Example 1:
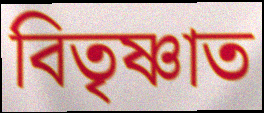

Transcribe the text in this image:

বিতৃষ্ণাত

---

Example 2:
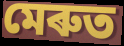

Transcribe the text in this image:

মেৰুত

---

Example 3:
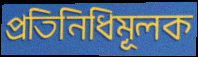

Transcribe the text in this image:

প্ৰতিনিধিমূলক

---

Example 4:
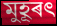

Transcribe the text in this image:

মুহূৰৎ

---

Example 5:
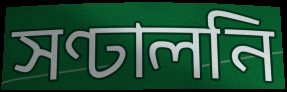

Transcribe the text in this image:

সণ্ঢালনি